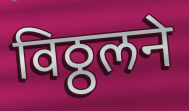
विठ्ठलने